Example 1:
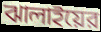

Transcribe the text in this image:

ঝালাইয়ের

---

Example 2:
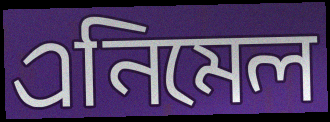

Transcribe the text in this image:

এনিমেল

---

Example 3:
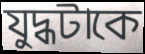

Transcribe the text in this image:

যুদ্ধটাকে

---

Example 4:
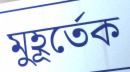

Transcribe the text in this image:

মুহূর্তেক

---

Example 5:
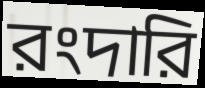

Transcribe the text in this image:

রংদারি